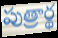
పుత్రార్థ